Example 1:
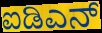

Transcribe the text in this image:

ಐಡಿಎನ್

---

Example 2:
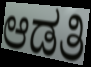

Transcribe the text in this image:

ಆಡತಿ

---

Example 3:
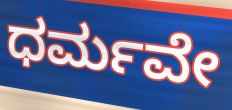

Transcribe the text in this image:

ಧರ್ಮವೇ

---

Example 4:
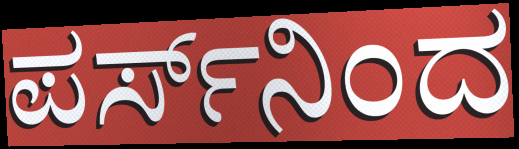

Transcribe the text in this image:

ಪರ್ಸ್‌ನಿಂದ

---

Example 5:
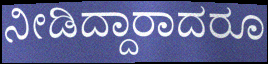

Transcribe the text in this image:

ನೀಡಿದ್ದಾರಾದರೂ